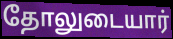
தோலுடையார்